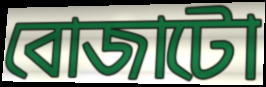
বোজাটো